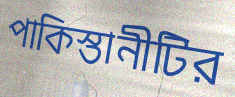
পাকিস্তানীটির